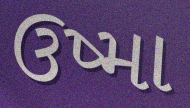
ઉષ્મા